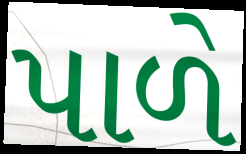
પાળે